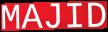
MAJID